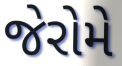
જેરોમે